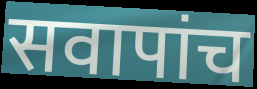
सवापांच